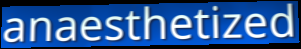
anaesthetized